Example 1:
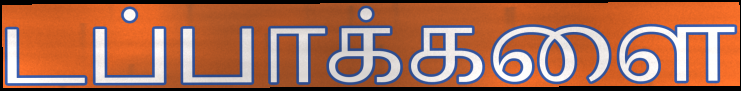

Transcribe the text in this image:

டப்பாக்களை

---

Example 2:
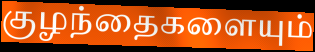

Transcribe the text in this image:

குழந்தைகளையும்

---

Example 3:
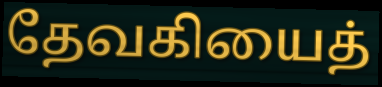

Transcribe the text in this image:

தேவகியைத்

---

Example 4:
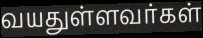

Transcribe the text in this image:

வயதுள்ளவர்கள்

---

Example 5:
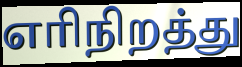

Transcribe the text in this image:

எரிநிறத்து